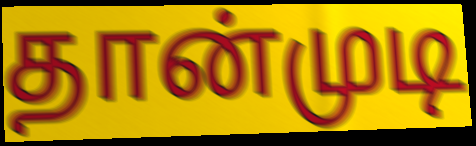
தான்முடி